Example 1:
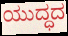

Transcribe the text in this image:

ಯುದ್ಧದ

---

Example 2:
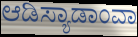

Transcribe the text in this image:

ಆಡಿಸ್ಯಾಡಾಂವಾ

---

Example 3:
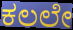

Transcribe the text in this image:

ಕಲಲೇ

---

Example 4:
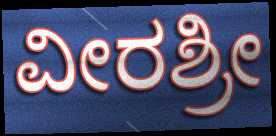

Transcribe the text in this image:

ವೀರಶ್ರೀ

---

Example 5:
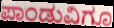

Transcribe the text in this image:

ಪಾಂಡುವಿಗೂ